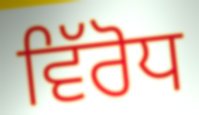
ਵਿੱਰੋਧ